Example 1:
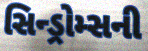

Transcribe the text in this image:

સિન્ડ્રોમ્સની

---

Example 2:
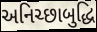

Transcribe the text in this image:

અનિચ્છાબુદ્ધિ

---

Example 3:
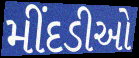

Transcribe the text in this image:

મીંદડીઓ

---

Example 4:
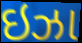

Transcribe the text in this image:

ઇઝા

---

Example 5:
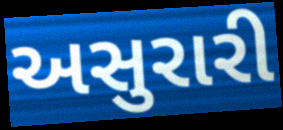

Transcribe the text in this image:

અસુરારી